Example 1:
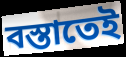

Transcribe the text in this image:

বস্তাতেই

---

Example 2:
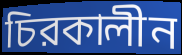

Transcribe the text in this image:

চিরকালীন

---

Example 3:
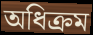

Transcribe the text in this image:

অধিক্রম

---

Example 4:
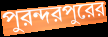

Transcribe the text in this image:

পুরন্দরপুরের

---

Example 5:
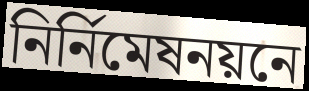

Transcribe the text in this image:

নির্নিমেষনয়নে